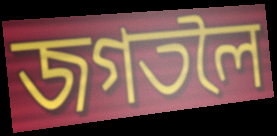
জগতলৈ